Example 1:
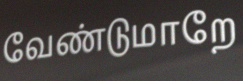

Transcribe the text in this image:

வேண்டுமாறே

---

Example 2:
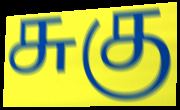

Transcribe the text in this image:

சுகு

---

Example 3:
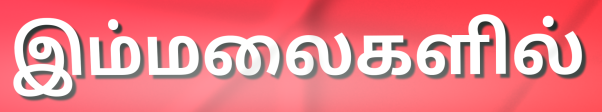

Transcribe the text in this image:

இம்மலைகளில்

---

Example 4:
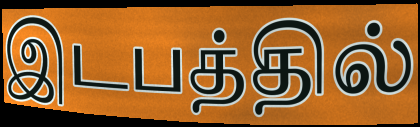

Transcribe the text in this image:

இடபத்தில்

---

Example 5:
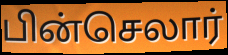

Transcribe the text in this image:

பின்செலார்